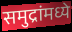
समुद्रांमध्ये